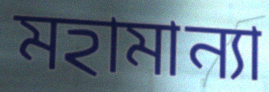
মহামান্যা